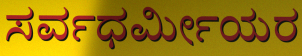
ಸರ್ವಧರ್ಮೀಯರ